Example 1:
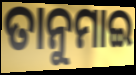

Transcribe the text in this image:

ତାନୁମାଇ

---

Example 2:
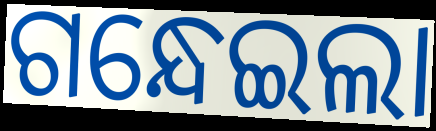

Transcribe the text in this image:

ଗନ୍ଧେଇଲା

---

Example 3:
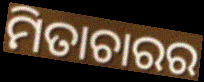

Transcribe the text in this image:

ମିତାଚାରର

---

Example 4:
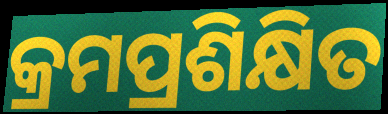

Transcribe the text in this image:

କ୍ରମପ୍ରଶିକ୍ଷିତ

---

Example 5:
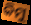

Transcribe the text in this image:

କିମୁ